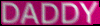
DADDY